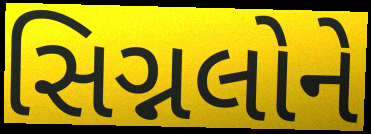
સિગ્નલોને